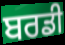
ਬਰਡੀ